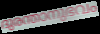
ദുരന്താനുഭവം